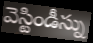
వెస్టిండీస్ను